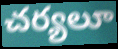
చర్యలూ